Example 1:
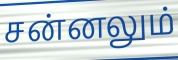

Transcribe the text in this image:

சன்னலும்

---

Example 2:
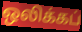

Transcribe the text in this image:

ஒலிக்கப்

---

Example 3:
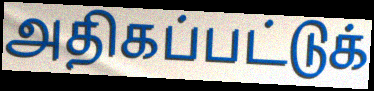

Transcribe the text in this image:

அதிகப்பட்டுக்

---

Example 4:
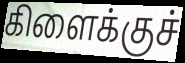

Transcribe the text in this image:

கிளைக்குச்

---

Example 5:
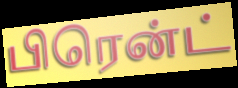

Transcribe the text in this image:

பிரென்ட்